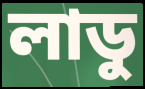
লাডু